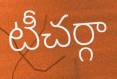
టీచర్గా